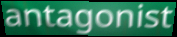
antagonist